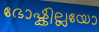
ഭോഷ്കില്ലയോ